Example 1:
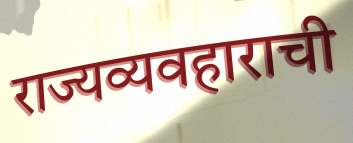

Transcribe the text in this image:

राज्यव्यवहाराची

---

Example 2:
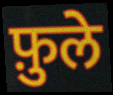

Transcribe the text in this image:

फ़ुले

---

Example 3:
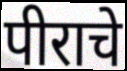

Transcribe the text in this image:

पीराचे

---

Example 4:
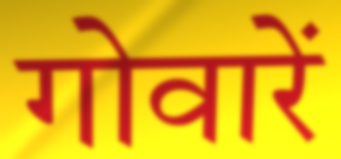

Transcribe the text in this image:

गोवारें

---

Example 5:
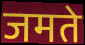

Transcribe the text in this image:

जमते